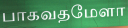
பாகவதமேளா